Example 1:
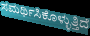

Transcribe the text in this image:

ಸಮರ್ಥಿಸಿಕೊಳ್ಳುತ್ತಿದೆ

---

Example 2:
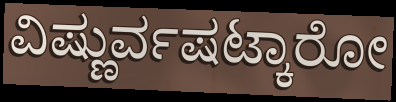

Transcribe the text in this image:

ವಿಷ್ಣುರ್ವಷಟ್ಕಾರೋ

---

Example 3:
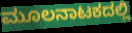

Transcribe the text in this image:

ಮೂಲನಾಟಕದಲ್ಲಿ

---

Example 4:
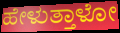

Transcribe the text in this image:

ಹೇಳುತ್ತಾಳೋ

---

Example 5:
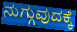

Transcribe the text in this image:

ನುಗ್ಗುವುದಕ್ಕೆ